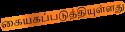
கையகப்படுத்தியுள்ளது